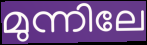
മുന്നിലേ